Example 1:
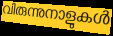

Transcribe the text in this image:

വിരുന്നുനാളുകൾ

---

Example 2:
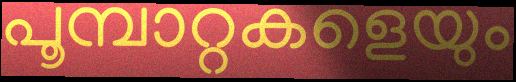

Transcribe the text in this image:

പൂമ്പാറ്റകളെയും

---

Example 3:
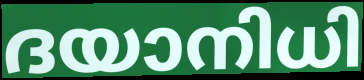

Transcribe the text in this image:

ദയാനിധി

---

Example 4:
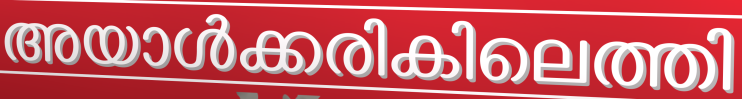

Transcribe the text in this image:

അയാൾക്കരികിലെത്തി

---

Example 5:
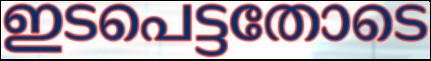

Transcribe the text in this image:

ഇടപെട്ടതോടെ